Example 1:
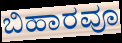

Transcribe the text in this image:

ಬಿಹಾರವೂ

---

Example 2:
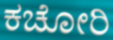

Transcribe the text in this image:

ಕಚೋರಿ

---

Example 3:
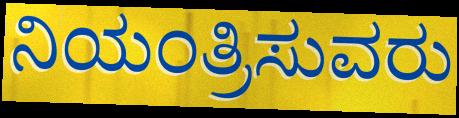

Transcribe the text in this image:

ನಿಯಂತ್ರಿಸುವರು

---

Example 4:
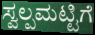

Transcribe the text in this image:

ಸ್ವಲ್ಪಮಟ್ಟಿಗೆ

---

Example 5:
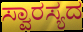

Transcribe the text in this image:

ಸ್ವಾರಸ್ಯದ